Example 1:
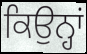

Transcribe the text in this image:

ਕਿਉਨ੍ਹਾਂ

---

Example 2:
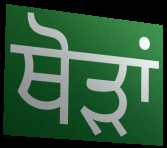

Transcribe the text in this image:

ਥੋੜਾਂ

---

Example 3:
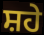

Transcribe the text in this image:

ਸ਼ਹੇ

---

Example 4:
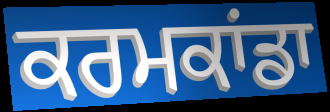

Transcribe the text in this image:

ਕਰਮਕਾਂਡਾ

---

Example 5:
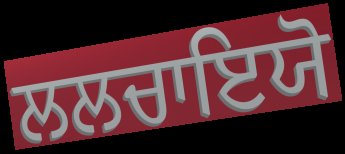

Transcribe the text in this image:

ਲਲਚਾਇਯੋ